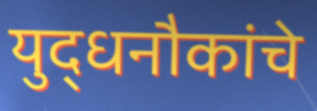
युद्धनौकांचे